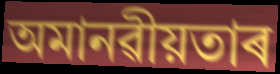
অমানৱীয়তাৰ